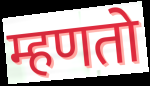
म्हणतो